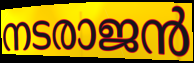
നടരാജൻ